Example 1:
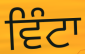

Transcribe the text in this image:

ਵਿੰਟਾ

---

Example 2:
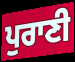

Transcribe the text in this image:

ਪੁਰਾਣੀ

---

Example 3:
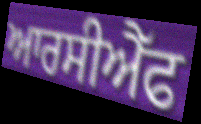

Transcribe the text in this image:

ਆਰਸੀਐੱਫ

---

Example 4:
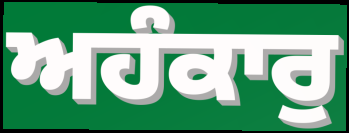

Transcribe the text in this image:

ਅਹੰਕਾਰੁ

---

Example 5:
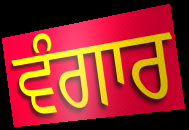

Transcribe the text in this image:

ਵੰਗਾਰ